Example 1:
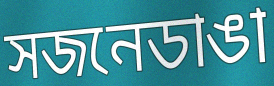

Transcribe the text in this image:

সজনেডাঙা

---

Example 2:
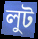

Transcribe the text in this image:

লুট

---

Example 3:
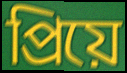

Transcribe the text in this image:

প্রিয়ে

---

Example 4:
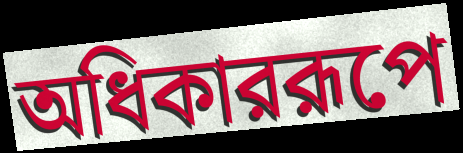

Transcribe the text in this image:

অধিকাররূপে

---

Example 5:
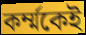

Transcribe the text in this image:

কর্ম্মকেই